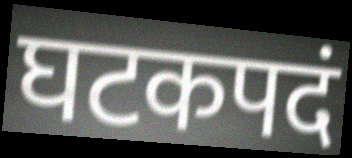
घटकपदं